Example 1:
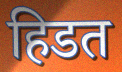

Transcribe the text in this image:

हिडत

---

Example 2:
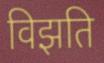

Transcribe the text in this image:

विझति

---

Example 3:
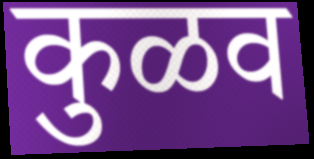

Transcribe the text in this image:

कुळव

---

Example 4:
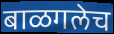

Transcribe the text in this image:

बाळगलेच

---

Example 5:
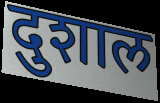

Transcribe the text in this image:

दुशाल